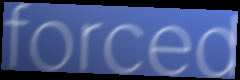
forced